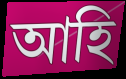
আহি